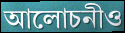
আলোচনীও